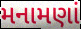
મનામણાં